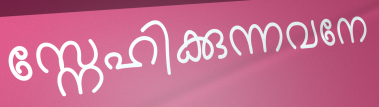
സ്നേഹിക്കുന്നവനേ